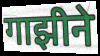
गाझीने